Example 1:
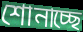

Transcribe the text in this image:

শোনাচ্ছে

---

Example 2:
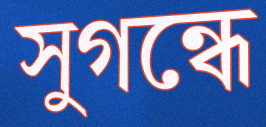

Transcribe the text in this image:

সুগন্ধে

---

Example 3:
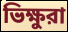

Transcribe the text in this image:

ভিক্ষুরা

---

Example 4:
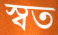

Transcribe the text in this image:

স্বত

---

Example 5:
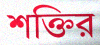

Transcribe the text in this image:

শক্তির